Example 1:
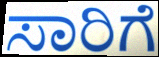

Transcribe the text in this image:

ಸಾರಿಗೆ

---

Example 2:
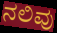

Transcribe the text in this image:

ನಲಿವು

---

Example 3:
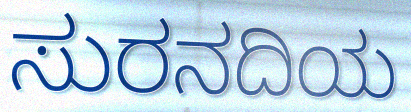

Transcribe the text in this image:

ಸುರನದಿಯ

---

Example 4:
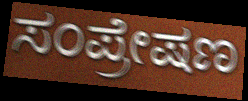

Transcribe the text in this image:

ಸಂಪ್ರೇಷಣ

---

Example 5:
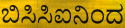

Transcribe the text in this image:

ಬಿಸಿಸಿಐನಿಂದ